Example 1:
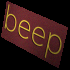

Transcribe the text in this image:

beep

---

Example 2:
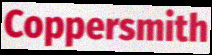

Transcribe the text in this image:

Coppersmith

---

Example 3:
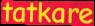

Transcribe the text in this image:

tatkare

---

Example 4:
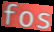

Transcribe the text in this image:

fos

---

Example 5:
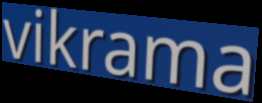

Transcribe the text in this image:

vikrama